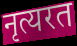
नृत्यरत